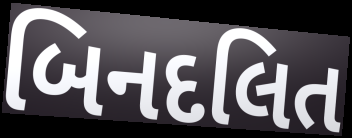
બિનદલિત